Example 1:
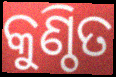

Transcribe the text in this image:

କୁଣ୍ଠିତ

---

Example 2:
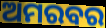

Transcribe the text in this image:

ଅମରବର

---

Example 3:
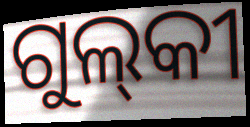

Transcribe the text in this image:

ଗୁଲ୍‌କୀ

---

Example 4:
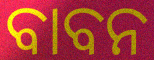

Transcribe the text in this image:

ବାବନ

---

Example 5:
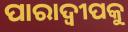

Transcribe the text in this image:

ପାରାଦ୍ୱୀପକୁ